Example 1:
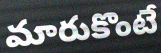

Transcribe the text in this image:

మారుకొంటే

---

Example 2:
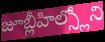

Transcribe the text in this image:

జూబ్లీహిల్స్లోని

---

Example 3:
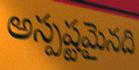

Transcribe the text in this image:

అస్పష్టమైనది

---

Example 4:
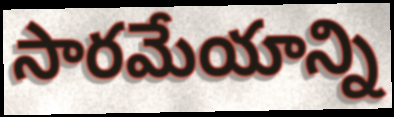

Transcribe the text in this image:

సారమేయాన్ని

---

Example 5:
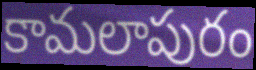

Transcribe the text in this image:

కామలాపురం